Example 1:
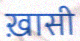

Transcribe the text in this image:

ख़ासी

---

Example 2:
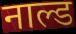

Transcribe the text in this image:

नाल्ड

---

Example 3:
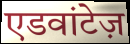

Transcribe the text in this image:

एडवांटेज़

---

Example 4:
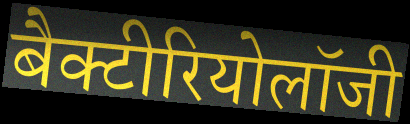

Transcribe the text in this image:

बैक्टीरियोलॉजी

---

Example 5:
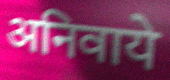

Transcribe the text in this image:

अनिवाये